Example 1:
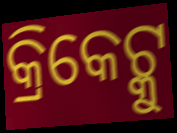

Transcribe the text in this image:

କ୍ରିକେଟ୍କୁ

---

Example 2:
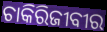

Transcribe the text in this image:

ଚାକିରିଜୀବୀର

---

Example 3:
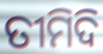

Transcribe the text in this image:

ତୀମିଦି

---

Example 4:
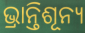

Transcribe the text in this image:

ଭ୍ରାନ୍ତିଶୂନ୍ୟ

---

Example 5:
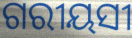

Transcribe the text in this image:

ଗରୀୟସୀ